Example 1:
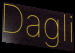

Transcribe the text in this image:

Dagli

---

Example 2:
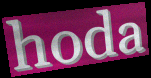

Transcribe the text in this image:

hoda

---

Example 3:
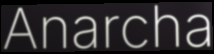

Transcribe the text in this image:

Anarcha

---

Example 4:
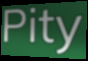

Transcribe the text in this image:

Pity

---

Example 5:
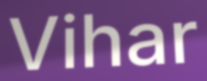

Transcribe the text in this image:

Vihar